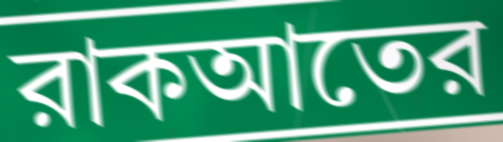
রাকআতের